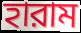
হারাম